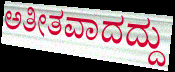
ಅತೀತವಾದದ್ದು